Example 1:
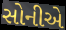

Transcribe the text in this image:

સોનીએ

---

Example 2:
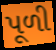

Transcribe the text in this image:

પૂળી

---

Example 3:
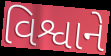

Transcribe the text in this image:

વિશ્વાને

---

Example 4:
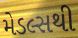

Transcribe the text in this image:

મેડલ્સથી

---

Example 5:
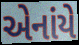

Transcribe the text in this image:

એનાંયે